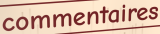
commentaires